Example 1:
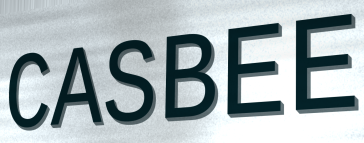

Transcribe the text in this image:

CASBEE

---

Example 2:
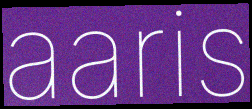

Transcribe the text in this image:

aaris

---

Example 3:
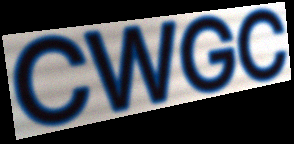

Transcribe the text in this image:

CWGC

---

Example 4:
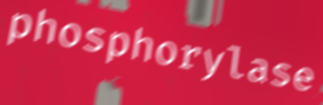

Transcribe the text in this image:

phosphorylase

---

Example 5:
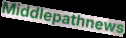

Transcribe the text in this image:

Middlepathnews